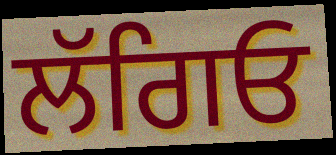
ਲੱਗਿਓ